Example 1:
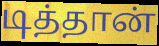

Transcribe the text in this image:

டித்தான்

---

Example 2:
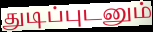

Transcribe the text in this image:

துடிப்புடனும்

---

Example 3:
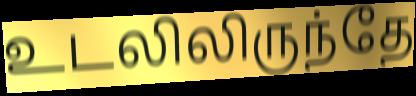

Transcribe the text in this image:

உடலிலிருந்தே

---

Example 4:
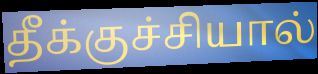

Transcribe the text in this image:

தீக்குச்சியால்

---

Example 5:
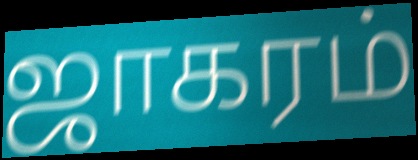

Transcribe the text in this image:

ஜாகரம்